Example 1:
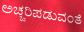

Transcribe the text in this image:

ಅಚ್ಚರಿಪಡುವಂತೆ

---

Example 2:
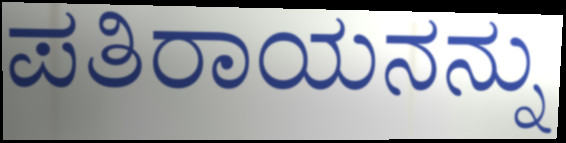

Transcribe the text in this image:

ಪತಿರಾಯನನ್ನು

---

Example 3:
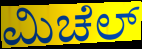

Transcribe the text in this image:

ಮಿಚೆಲ್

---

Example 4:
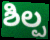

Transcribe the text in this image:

ಶಿಲ್ಪ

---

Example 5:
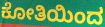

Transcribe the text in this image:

ಕೋತಿಯಿಂದ